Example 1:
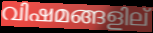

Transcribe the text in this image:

വിഷമങ്ങളില്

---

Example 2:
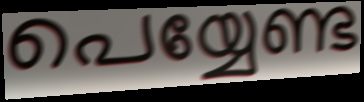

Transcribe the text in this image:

പെയ്യേണ്ട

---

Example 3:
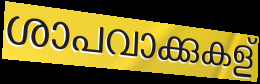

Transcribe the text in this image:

ശാപവാക്കുകള്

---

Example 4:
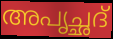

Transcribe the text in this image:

അപൃച്ഛദ്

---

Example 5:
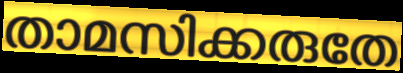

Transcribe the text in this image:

താമസിക്കരുതേ